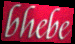
bhebe